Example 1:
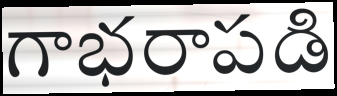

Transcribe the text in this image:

గాభరాపడి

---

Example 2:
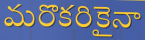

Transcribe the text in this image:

మరొకరికైనా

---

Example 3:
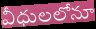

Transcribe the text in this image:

వీధులలోనూ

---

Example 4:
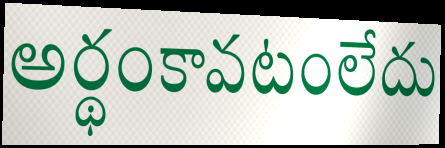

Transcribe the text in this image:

అర్థంకావటంలేదు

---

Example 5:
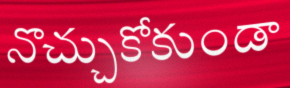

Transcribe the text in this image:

నొచ్చుకోకుండా